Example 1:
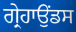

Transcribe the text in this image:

ਗ੍ਰੇਹਾਉਂਡਸ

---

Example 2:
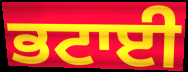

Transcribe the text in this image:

ਭਟਾਈ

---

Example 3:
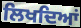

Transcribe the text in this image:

ਲਿਖਦਿਆਂ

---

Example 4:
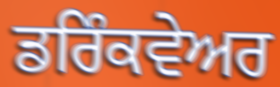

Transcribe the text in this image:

ਡਰਿੰਕਵੇਅਰ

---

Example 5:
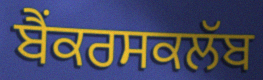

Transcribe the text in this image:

ਬੈਂਕਰਸਕਲੱਬ